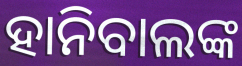
ହାନିବାଲଙ୍କ